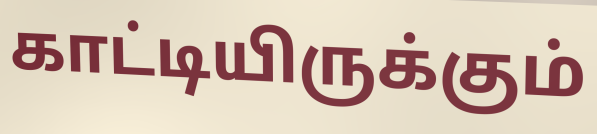
காட்டியிருக்கும்